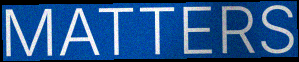
MATTERS